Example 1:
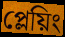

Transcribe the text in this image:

প্লেয়িং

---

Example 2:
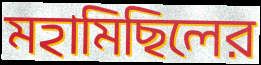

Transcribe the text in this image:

মহামিছিলের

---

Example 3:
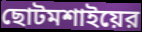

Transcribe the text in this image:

ছোটমশাইয়ের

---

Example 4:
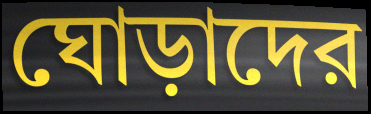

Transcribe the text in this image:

ঘোড়াদের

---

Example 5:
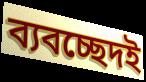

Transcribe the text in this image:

ব্যবচ্ছেদই